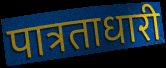
पात्रताधारी